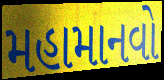
મહામાનવો